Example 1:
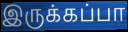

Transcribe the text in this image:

இருக்கப்பா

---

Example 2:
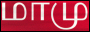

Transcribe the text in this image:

மாமு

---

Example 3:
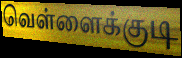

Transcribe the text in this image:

வெள்ளைக்குடி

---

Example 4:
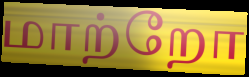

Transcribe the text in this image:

மாற்றோ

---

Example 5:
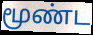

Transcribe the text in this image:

மூண்ட